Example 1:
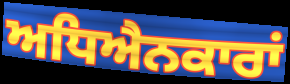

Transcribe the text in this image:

ਅਧਿਐਨਕਾਰਾਂ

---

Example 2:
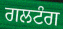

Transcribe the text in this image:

ਗਲਟੰਗ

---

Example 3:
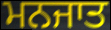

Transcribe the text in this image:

ਮਨਜਾਤ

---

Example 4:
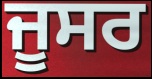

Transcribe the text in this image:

ਜੂਸਰ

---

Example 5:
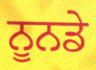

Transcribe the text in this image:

ਨੂਨਡੇ